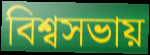
বিশ্বসভায়